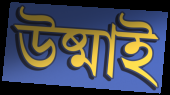
উষ্মাই